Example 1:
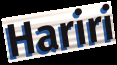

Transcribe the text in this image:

Hariri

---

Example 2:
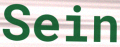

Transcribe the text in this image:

Sein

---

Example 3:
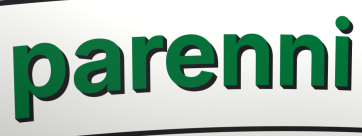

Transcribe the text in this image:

parenni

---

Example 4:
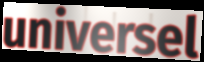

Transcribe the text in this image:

universel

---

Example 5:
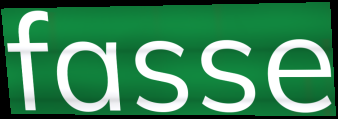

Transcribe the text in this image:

fasse